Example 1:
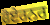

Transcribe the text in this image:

ਹੋਏਰਨਰ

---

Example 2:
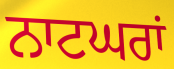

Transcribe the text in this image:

ਨਾਟਘਰਾਂ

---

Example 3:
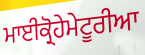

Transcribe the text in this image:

ਮਾਈਕ੍ਰੋਹੇਮੇਟੂਰੀਆ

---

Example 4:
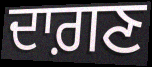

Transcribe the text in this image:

ਦਾਗ਼ਣ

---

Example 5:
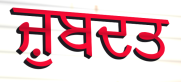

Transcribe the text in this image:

ਜ਼ੁਬਦਤ